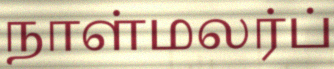
நாள்மலர்ப்